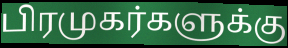
பிரமுகர்களுக்கு